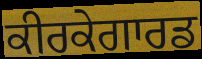
ਕੀਰਕੇਗਾਰਡ